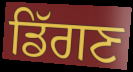
ਡਿੱਗਣ